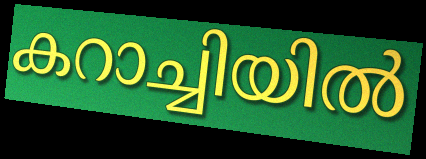
കറാച്ചിയിൽ